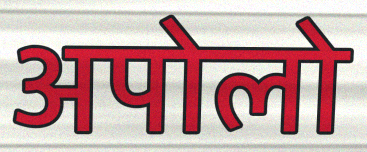
अपोलो